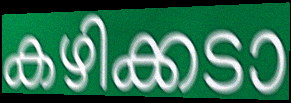
കഴിക്കടാ